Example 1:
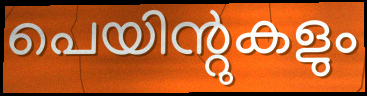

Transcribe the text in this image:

പെയിന്റുകളും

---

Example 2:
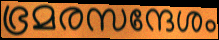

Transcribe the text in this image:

ഭ്രമരസന്ദേശം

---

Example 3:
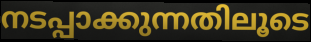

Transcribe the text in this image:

നടപ്പാക്കുന്നതിലൂടെ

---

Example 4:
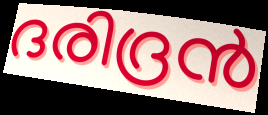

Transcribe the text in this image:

ദരിദ്രൻ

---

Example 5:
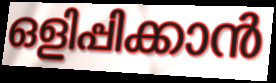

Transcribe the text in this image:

ഒളിപ്പിക്കാൻ